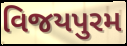
વિજયપુરમ